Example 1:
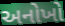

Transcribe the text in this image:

અનોખો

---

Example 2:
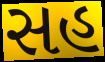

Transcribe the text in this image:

સહ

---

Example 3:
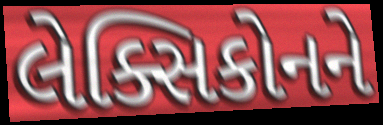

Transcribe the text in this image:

લેક્સિકોનને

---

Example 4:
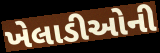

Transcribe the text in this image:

ખેલાડીઓની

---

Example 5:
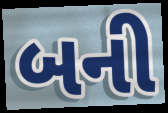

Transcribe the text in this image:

બની